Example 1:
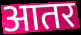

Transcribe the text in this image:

आतर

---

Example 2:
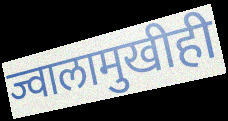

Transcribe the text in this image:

ज्वालामुखीही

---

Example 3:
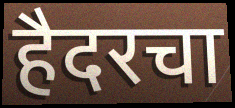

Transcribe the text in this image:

हैदरचा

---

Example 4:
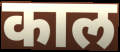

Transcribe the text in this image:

काल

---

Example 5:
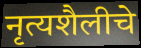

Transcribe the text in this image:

नृत्यशैलीचे